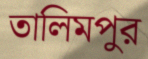
তালিমপুর